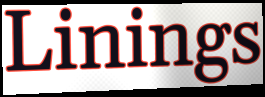
Linings